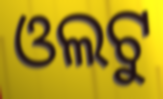
ଓଲଟୁ